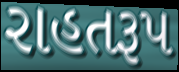
રાહતરૂપ